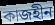
কাজহীন